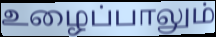
உழைப்பாலும்